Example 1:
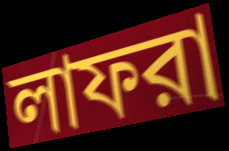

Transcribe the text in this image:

লাফরা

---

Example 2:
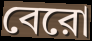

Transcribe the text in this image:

বেরো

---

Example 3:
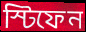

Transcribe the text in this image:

স্টিফেন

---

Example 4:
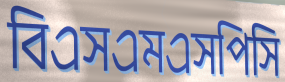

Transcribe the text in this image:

বিএসএমএসপিসি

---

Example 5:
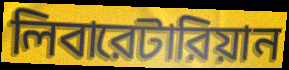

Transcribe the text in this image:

লিবারেটারিয়ান